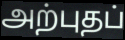
அற்புதப்